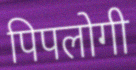
पिपलोगी